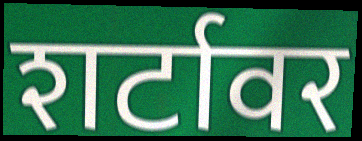
शर्टावर